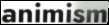
animism